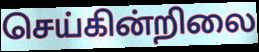
செய்கின்றிலை